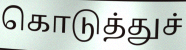
கொடுத்துச்